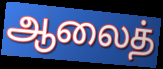
ஆலைத்